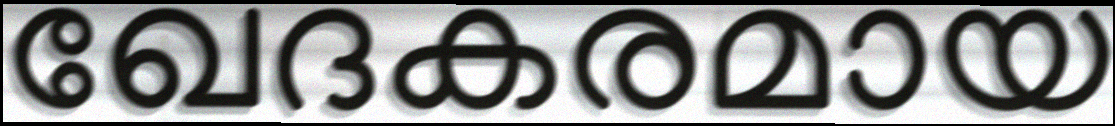
ഖേദകരമായ